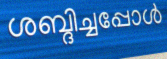
ശബ്ദിച്ചപ്പോൾ